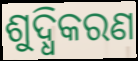
ଶୁଦ୍ଧିକରଣ